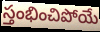
స్తంభించిపోయే